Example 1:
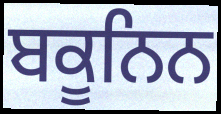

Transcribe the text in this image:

ਬਕੂਨਿਨ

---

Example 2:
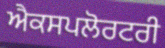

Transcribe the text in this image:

ਐਕਸਪਲੋਰਟਰੀ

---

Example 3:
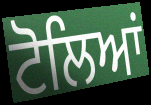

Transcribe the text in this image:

ਟੋਲਿਆਂ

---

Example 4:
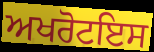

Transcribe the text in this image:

ਅਖਰੋਟਇਸ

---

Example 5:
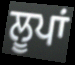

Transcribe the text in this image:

ਲੂਪਾਂ